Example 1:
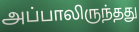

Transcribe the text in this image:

அப்பாலிருந்தது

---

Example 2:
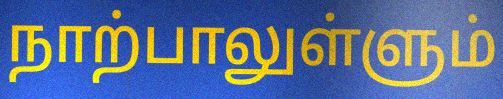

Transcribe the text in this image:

நாற்பாலுள்ளும்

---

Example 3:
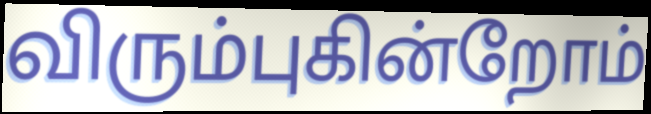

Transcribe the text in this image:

விரும்புகின்றோம்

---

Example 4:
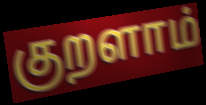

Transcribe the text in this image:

குறளாம்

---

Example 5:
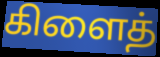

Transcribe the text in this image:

கிளைத்